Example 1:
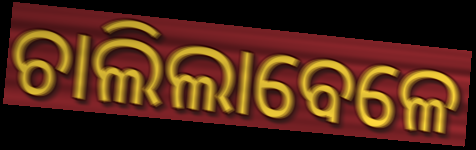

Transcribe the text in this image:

ଚାଲିଲାବେଳେ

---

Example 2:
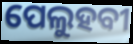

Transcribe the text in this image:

ପେଲୁହବୀ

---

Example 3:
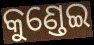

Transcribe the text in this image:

କୁଣ୍ଡେଇ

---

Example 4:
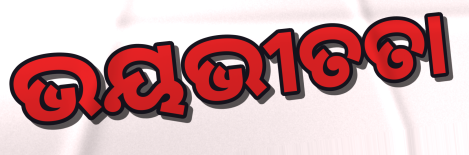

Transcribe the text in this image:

ଭୟଭୀତତା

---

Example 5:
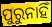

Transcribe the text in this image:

ପୁରୁନାହିଁ